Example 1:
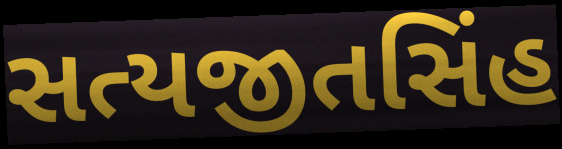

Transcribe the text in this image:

સત્યજીતસિંહ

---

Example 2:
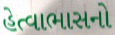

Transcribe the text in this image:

હેત્વાભાસનો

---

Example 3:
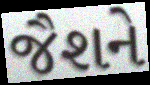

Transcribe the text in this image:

જૈશને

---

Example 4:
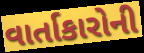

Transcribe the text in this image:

વાર્તાકારોની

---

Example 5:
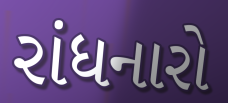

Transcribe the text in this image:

રાંધનારો